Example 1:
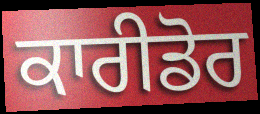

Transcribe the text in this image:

ਕਾਰੀਡੋਰ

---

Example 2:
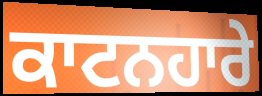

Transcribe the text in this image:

ਕਾਟਨਹਾਰੇ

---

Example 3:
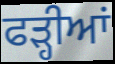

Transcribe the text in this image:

ਫੜ੍ਹੀਆਂ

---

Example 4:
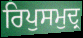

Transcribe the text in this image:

ਰਿਪੁਸਮੁਦ੍ਰ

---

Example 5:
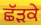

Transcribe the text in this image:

ਛੱੜਕੇ